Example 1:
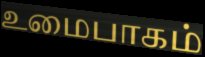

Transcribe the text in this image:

உமைபாகம்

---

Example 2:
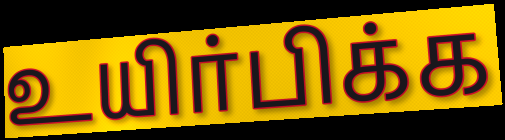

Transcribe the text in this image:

உயிர்பிக்க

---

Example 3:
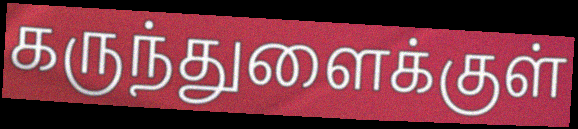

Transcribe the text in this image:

கருந்துளைக்குள்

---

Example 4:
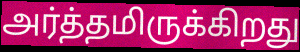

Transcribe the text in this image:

அர்த்தமிருக்கிறது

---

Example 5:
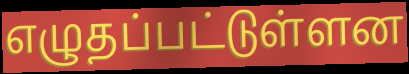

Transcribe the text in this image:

எழுதப்பட்டுள்ளன